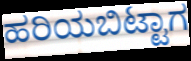
ಹರಿಯಬಿಟ್ಟಾಗ